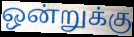
ஒன்றுக்கு